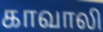
காவாலி